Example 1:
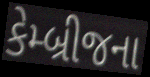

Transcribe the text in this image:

કેમ્બ્રીજના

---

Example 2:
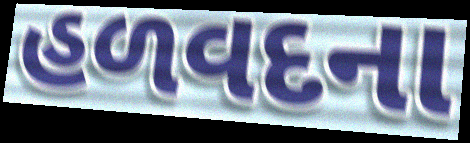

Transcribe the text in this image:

હળવદના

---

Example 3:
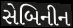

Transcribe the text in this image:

સેબિનીન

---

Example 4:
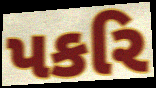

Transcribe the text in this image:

પકરિ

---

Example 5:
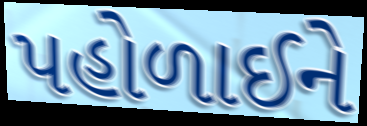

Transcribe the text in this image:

પહોળાઈને